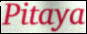
Pitaya